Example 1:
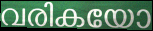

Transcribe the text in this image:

വരികയോ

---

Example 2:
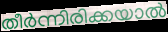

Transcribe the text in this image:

തീർന്നിരിക്കയാൽ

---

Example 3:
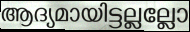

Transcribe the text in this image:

ആദ്യമായിട്ടല്ലല്ലോ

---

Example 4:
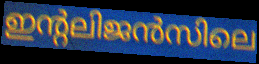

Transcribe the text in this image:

ഇന്റലിജൻസിലെ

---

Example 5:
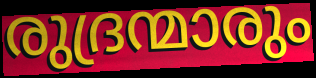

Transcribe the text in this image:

രുദ്രന്മാരും